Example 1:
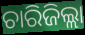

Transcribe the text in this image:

ଚାରିଜିଲ୍ଲା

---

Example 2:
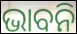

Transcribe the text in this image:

ଭାବନି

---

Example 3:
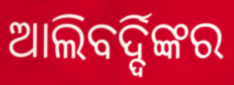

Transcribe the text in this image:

ଆଲିବର୍ଦ୍ଦିଙ୍କର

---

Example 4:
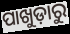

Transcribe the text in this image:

ପାଖୁଡ଼ାରୁ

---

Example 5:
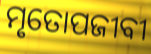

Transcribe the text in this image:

ମୃତୋପଜୀବୀ